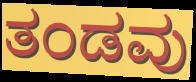
ತಂಡವು